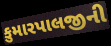
કુમારપાલજીની